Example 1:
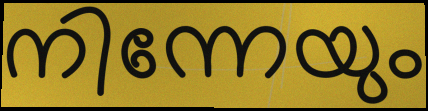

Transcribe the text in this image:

നിന്നേയും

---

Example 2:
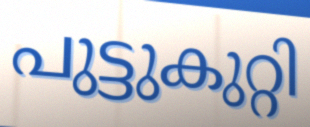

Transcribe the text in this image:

പുട്ടുകുറ്റി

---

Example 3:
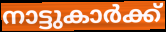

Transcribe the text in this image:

നാട്ടുകാർക്ക്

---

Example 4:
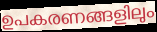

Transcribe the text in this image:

ഉപകരണങ്ങളിലും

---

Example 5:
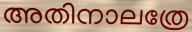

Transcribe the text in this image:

അതിനാലത്രേ